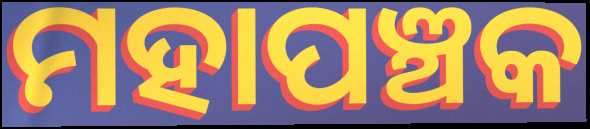
ମହାପଞ୍ଚକ